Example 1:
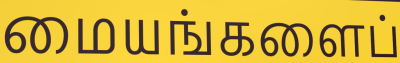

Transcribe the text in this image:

மையங்களைப்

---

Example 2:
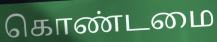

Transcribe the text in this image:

கொண்டமை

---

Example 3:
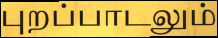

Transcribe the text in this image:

புறப்பாடலும்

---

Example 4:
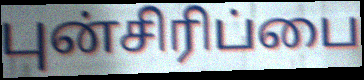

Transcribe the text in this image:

புன்சிரிப்பை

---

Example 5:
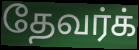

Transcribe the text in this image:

தேவர்க்